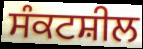
ਸੰਕਟਸ਼ੀਲ